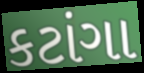
કટાંગા